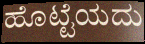
ಹೊಟ್ಟೆಯದು